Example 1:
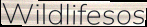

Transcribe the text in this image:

Wildlifesos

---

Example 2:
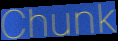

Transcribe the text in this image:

Chunk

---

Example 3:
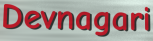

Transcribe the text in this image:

Devnagari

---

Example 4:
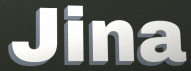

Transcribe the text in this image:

Jina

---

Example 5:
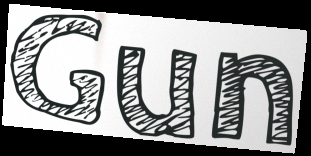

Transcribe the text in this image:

Gun